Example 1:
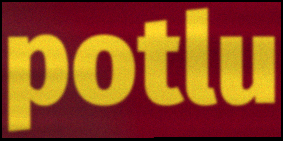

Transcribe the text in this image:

potlu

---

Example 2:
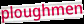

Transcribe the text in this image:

ploughmen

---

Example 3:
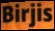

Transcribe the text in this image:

Birjis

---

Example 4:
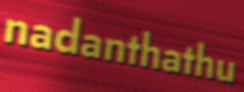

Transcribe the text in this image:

nadanthathu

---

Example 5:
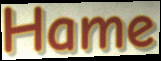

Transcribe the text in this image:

Hame